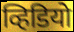
व्हिडियो